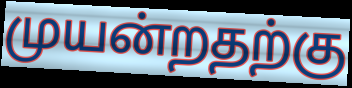
முயன்றதற்கு